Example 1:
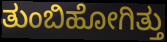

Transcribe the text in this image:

ತುಂಬಿಹೋಗಿತ್ತು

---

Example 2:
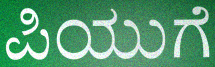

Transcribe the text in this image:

ಪಿಯುಗೆ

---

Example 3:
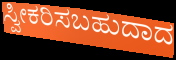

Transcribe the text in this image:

ಸ್ವೀಕರಿಸಬಹುದಾದ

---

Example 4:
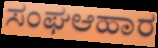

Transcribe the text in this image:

ಸಂಘಆಹಾರ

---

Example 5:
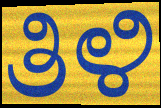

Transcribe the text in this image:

ತಿಳಿ